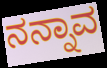
ನನ್ನಾವ